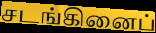
சடங்கினைப்